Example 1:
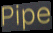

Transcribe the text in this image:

Pipe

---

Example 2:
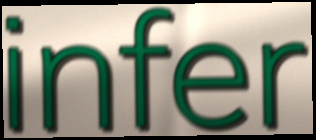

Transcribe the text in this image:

infer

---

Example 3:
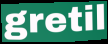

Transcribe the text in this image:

gretil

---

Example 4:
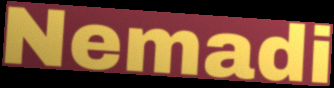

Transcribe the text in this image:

Nemadi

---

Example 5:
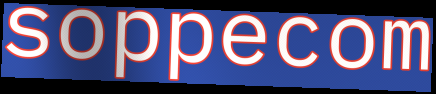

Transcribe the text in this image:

soppecom